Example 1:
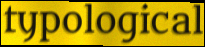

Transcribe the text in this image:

typological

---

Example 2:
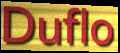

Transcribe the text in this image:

Duflo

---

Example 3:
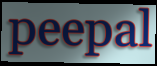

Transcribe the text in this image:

peepal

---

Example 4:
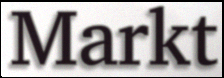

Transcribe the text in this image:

Markt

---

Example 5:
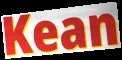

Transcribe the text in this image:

Kean